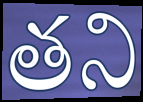
తని